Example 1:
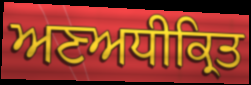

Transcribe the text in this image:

ਅਣਅਧੀਕ੍ਰਿਤ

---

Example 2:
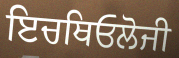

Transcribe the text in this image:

ਇਚਥਿਓਲੋਜੀ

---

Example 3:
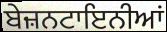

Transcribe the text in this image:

ਬੇਜ਼ਨਟਾਇਨੀਆਂ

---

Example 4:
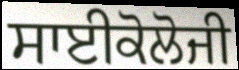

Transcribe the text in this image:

ਸਾਈਕੋਲੋਜੀ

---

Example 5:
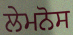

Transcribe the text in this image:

ਲੇਮਨੋਸ